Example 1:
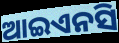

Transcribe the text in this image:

ଆଇଏନସି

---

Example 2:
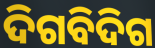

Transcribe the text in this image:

ଦିଗବିଦିଗ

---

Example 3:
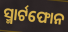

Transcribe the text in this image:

ସ୍ମାର୍ଟଫୋନ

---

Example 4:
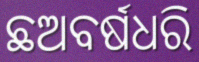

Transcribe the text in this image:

ଛଅବର୍ଷଧରି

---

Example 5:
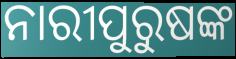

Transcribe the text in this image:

ନାରୀପୁରୁଷଙ୍କ